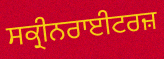
ਸਕ੍ਰੀਨਰਾਈਟਰਜ਼